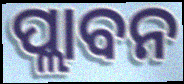
ପ୍ଲାବନ